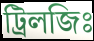
ট্রিলজিঃ